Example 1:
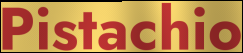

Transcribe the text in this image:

Pistachio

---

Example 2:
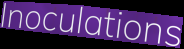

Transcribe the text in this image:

Inoculations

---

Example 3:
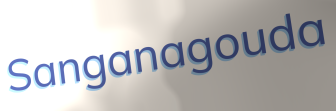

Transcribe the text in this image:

Sanganagouda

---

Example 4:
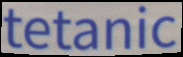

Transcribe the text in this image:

tetanic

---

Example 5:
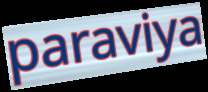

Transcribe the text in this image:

paraviya